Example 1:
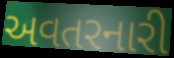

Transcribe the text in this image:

અવતરનારી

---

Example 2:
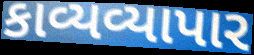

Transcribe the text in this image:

કાવ્યવ્યાપાર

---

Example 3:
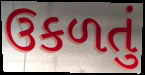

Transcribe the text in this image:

ઉકળતું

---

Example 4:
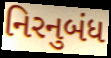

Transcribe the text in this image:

નિરનુબંધ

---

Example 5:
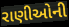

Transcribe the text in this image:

રાણીઓની